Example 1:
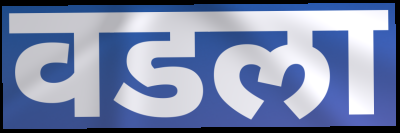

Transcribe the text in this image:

वडला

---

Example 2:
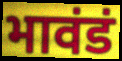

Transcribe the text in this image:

भावंडं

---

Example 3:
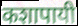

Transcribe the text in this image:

कशापायी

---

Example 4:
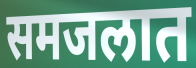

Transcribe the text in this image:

समजलात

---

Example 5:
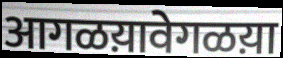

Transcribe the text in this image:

आगळय़ावेगळय़ा